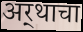
अर्थाचा